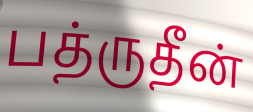
பத்ருதீன்